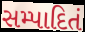
સમ્પાદિતં